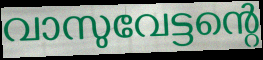
വാസുവേട്ടന്റെ